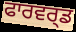
ਫਾਰਵਰ੍ਡ